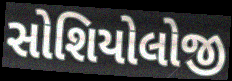
સોશિયોલોજી